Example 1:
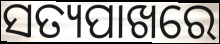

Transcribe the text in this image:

ସତ୍ୟପାଖରେ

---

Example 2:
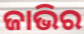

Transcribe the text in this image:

ଜାଭିର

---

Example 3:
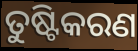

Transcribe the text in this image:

ତୁଷ୍ଟିକରଣ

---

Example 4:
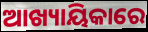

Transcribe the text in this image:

ଆଖ୍ୟାୟିକାରେ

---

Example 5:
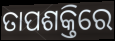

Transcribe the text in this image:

ତାପଶକ୍ତିରେ